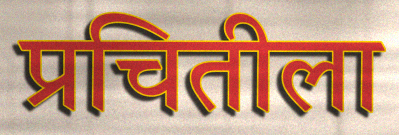
प्रचितीला